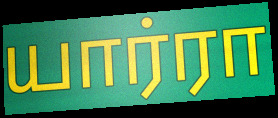
யார்ரா